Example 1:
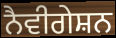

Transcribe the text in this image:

ਨੈਵੀਗੇਸ਼ਨ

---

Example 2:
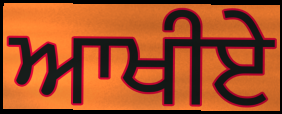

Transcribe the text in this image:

ਆਖੀਏ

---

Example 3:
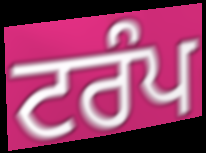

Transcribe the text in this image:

ਟਰੰਪ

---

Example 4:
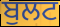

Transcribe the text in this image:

ਬੁਲਟ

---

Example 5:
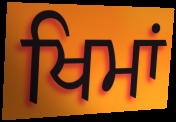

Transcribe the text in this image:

ਖਿਮਾਂ